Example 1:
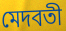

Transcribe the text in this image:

মেদবতী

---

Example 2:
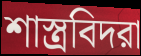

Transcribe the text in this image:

শাস্ত্রবিদরা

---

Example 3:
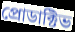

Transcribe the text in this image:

প্রোডাক্টিভ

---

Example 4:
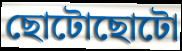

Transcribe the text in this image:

ছোটোছোটো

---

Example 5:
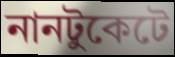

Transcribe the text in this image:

নানটুকেটে